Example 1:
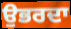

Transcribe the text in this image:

ਉਭਰਦਾ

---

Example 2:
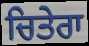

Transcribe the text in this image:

ਚਿਤੇਰਾ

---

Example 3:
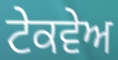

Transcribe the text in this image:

ਟੇਕਵੇਅ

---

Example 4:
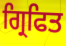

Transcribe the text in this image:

ਗ੍ਰਿਫਿਤ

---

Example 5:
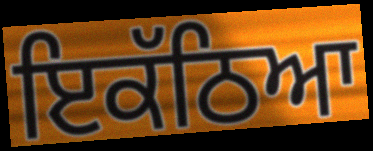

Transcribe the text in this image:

ਇਕੱਠਿਆ